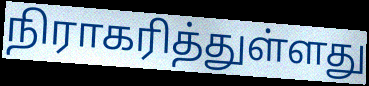
நிராகரித்துள்ளது